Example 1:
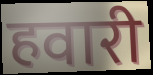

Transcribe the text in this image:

हवारी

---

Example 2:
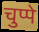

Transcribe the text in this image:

चुप्पे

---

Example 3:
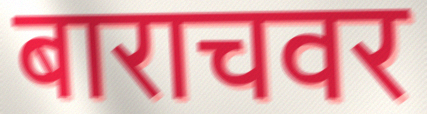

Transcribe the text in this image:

बाराचवर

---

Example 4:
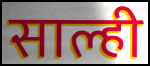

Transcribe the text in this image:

साल्ही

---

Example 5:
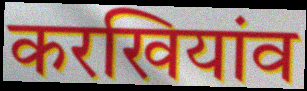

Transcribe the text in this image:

करखियांव